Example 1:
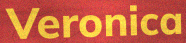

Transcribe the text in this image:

Veronica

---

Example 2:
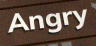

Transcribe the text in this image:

Angry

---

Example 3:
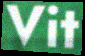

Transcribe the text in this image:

Vit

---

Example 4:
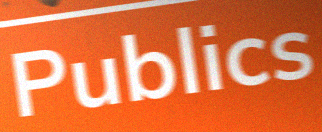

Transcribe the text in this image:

Publics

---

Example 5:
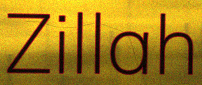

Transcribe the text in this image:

Zillah